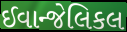
ઈવાન્જેલિકલ